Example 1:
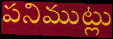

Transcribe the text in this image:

పనిముట్లు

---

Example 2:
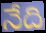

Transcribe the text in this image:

నేది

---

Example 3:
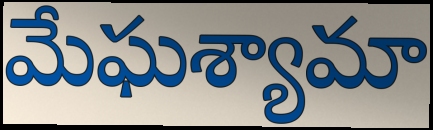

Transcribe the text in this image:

మేఘశ్యామా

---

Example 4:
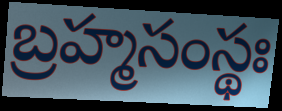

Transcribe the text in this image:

బ్రహ్మసంస్థః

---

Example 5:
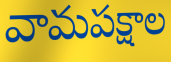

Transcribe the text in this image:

వామపక్షాల